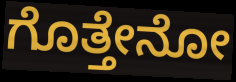
ಗೊತ್ತೇನೋ